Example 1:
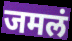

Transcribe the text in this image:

जमलं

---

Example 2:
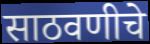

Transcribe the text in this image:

साठवणीचे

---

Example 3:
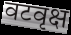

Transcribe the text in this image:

वटवृक्ष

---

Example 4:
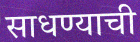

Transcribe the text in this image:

साधण्याची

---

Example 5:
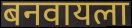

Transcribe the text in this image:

बनवायला